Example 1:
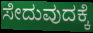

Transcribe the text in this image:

ಸೇದುವುದಕ್ಕೆ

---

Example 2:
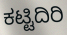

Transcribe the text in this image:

ಕಟ್ಟಿದಿರಿ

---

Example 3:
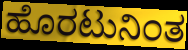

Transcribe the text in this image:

ಹೊರಟುನಿಂತ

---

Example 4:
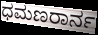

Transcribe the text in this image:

ಧಮಣರಾರ್ನ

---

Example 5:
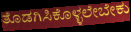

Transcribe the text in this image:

ತೊಡಗಿಸಿಕೊಳ್ಳಲೇಬೇಕು